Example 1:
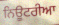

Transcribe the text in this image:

ਨਿਊਟਰੀਆ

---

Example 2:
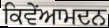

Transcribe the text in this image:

ਕਿਵੇਂਆਮਦਨ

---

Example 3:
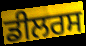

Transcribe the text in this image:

ਡੀਲਰਸ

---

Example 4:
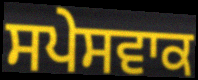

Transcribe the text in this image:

ਸਪੇਸਵਾਕ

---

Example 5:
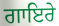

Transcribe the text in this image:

ਗਾਇਰੇ